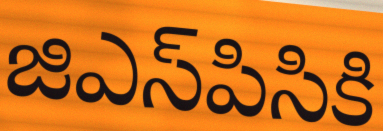
జిఎస్‌పిసికి